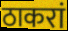
ठाकरां